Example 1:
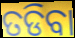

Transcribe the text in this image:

ତଡିବା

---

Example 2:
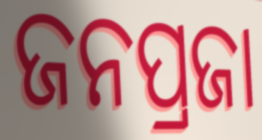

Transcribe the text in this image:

ଜନପ୍ରଜା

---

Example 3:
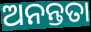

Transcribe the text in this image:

ଅନନ୍ତତା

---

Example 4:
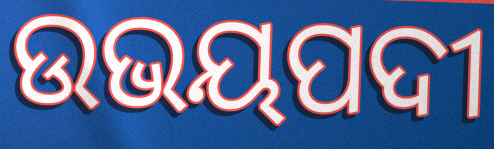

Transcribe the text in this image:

ଉଭୟପଦୀ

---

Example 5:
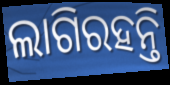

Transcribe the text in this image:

ଲାଗିରହନ୍ତି